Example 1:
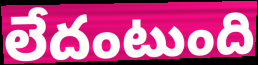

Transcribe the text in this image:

లేదంటుంది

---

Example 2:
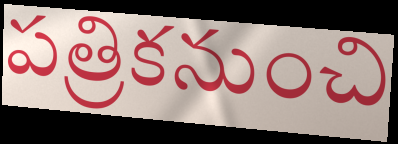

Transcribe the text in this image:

పత్రికనుంచి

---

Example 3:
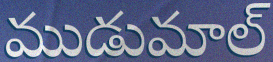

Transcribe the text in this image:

ముడుమాల్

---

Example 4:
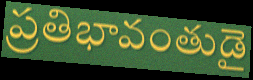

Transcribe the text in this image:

ప్రతిభావంతుడై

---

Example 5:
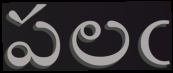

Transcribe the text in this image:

పలఁ